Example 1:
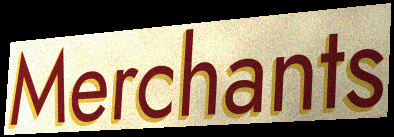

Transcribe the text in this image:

Merchants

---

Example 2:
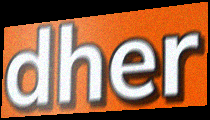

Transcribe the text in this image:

dher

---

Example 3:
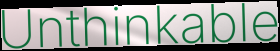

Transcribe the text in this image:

Unthinkable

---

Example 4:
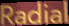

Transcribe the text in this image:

Radial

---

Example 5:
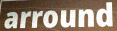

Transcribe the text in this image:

arround